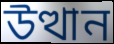
উত্থান